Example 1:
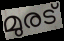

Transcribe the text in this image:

മുരട്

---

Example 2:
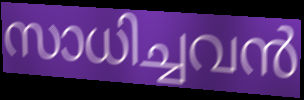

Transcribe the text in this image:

സാധിച്ചവൻ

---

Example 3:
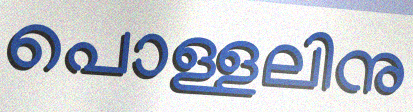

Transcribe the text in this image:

പൊള്ളലിനു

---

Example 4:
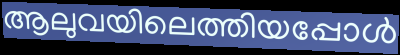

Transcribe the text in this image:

ആലുവയിലെത്തിയപ്പോൾ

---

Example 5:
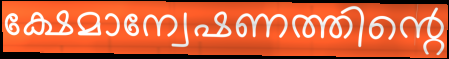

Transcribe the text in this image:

ക്ഷേമാന്വേഷണത്തിന്റെ